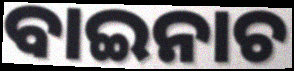
ବାଇନାଚ